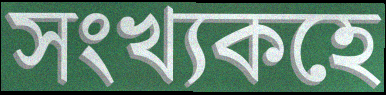
সংখ্যকহে